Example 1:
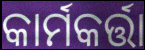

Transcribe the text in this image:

କାର୍ମକର୍ତ୍ତା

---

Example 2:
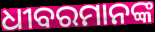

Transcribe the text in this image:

ଧୀବରମାନଙ୍କ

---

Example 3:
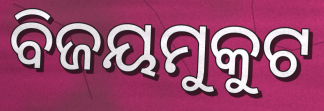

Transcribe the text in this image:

ବିଜୟମୁକୁଟ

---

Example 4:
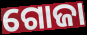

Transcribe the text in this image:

ଗୋଜା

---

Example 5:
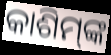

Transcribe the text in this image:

କାଶିମ୍‍ଙ୍କ